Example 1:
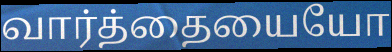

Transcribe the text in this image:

வார்த்தையையோ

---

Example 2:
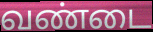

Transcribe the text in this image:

வண்டை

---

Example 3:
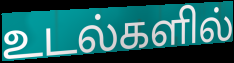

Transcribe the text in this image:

உடல்களில்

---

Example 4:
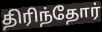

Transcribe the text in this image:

திரிந்தோர்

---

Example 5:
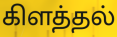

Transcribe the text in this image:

கிளத்தல்